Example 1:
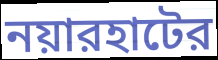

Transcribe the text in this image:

নয়ারহাটের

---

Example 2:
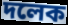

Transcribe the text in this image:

দলেক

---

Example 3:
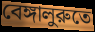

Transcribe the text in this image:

বেঙ্গালুরুতে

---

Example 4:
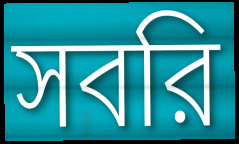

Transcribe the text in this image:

সবরি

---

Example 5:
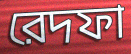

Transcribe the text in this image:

রেদফা